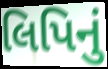
લિપિનું